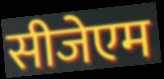
सीजेएम